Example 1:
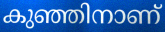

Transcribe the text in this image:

കുഞ്ഞിനാണ്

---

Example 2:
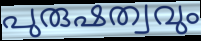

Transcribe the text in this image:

പുരുഷത്വവും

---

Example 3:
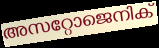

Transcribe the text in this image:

അസറ്റോജെനിക്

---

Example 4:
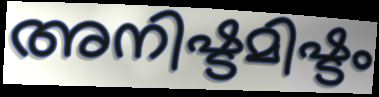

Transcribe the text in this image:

അനിഷ്ടമിഷ്ടം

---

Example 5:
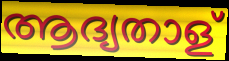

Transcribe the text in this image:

ആദ്യതാള്